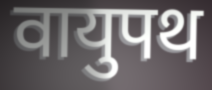
वायुपथ